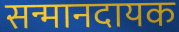
सन्मानदायक